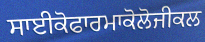
ਸਾਈਕੋਫਾਰਮਾਕੋਲੋਜੀਕਲ